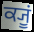
ਕ੍ਯੂਂ